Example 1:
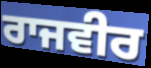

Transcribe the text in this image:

ਰਾਜਵੀਰ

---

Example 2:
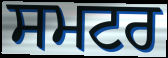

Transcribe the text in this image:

ਸਮਟਰ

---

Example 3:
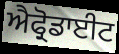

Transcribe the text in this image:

ਐਫ੍ਰੋਡਾਈਟ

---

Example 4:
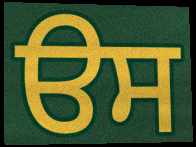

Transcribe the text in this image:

ੳਸ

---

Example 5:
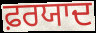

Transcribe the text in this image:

ਫ਼ਰਯਾਦ